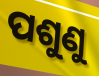
ପଶୁଣୁ